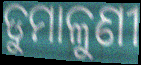
ଡୁମାଳୁଣୀ